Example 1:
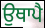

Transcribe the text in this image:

ਉਥਾਪੈ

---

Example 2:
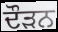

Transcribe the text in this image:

ਦੌਡ਼ਨ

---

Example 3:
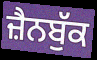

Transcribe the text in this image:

ਜ਼ੈਨਬੁੱਕ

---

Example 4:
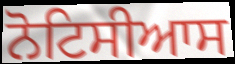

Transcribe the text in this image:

ਨੋਟਿਸੀਆਸ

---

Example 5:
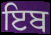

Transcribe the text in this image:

ਇਬ